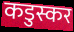
कडुस्कर